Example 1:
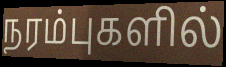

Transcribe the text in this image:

நரம்புகளில்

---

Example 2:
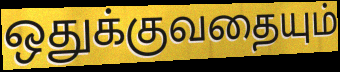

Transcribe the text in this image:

ஒதுக்குவதையும்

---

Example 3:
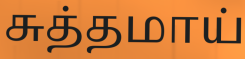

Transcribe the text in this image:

சுத்தமாய்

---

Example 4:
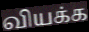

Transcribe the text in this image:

வியக்க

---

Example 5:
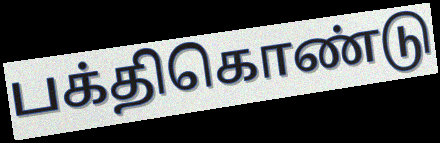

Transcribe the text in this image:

பக்திகொண்டு